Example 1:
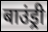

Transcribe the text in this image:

बाउंड्री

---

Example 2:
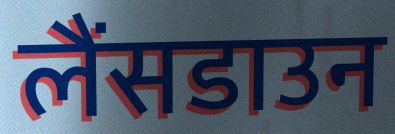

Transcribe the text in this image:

लैंसडाउन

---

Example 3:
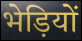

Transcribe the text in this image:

भेड़ियों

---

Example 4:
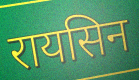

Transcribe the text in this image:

रायसिन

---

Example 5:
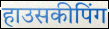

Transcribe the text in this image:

हाउसकीपिंग